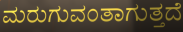
ಮರುಗುವಂತಾಗುತ್ತದೆ